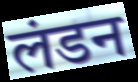
लंडन